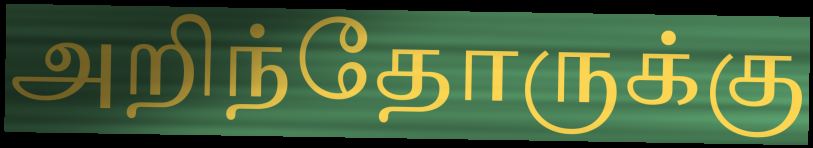
அறிந்தோருக்கு